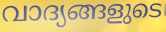
വാദ്യങ്ങളുടെ